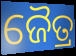
ଜୈତ୍ର